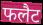
फलैट